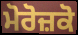
ਮੋਰੋਜ਼ਕੋ